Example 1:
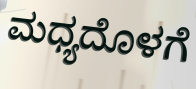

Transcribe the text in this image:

ಮಧ್ಯದೊಳಗೆ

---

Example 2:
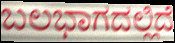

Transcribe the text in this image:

ಬಲಭಾಗದಲ್ಲಿದೆ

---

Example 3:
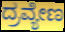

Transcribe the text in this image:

ದ್ರವ್ಯೇಣ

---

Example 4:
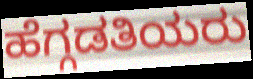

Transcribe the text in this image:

ಹೆಗ್ಗಡತಿಯರು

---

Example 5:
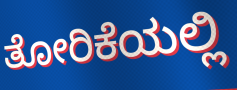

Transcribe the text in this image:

ತೋರಿಕೆಯಲ್ಲಿ